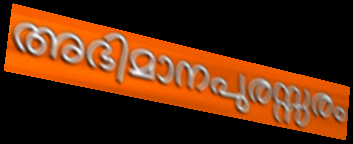
അഭിമാനപുരസ്സരം